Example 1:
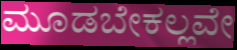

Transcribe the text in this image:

ಮೂಡಬೇಕಲ್ಲವೇ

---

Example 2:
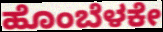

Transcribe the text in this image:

ಹೊಂಬೆಳಕೇ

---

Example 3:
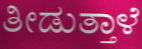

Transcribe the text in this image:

ತೀಡುತ್ತಾಳೆ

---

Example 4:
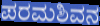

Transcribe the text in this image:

ಪರಮಶಿವನ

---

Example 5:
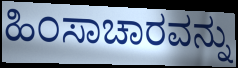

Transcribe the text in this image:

ಹಿಂಸಾಚಾರವನ್ನು